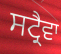
ਸਟ੍ਰੈਵਾ